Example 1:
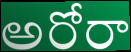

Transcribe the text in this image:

అరోరా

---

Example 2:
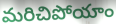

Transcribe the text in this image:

మరిచిపోయాం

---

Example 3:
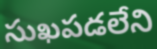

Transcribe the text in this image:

సుఖపడలేని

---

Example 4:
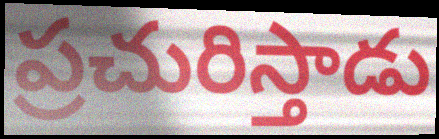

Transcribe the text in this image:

ప్రచురిస్తాడు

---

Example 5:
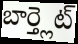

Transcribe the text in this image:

బార్త్లెట్